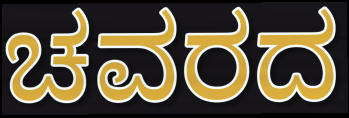
ಚವರದ